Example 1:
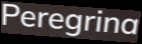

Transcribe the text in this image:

Peregrina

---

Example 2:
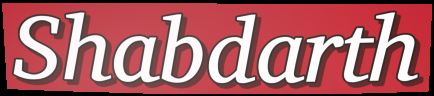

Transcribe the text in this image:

Shabdarth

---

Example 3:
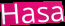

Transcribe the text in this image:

Hasa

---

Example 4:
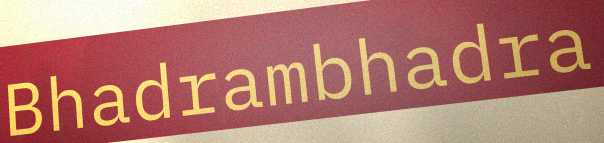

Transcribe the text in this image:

Bhadrambhadra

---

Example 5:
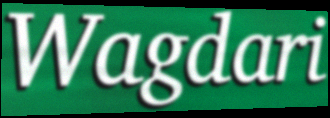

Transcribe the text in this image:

Wagdari